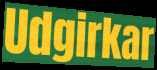
Udgirkar